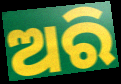
ଅରି